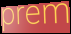
prem